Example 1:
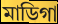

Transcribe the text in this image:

মাডিগা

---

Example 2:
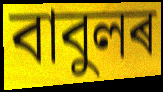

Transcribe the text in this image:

বাবুলৰ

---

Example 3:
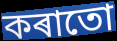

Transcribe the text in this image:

কৰাতো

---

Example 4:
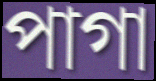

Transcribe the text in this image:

পাগা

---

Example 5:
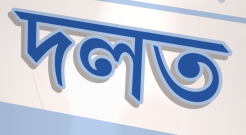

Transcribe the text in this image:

দলত